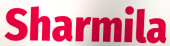
Sharmila